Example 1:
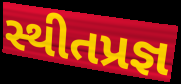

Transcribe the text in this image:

સ્થીતપ્રજ્ઞ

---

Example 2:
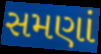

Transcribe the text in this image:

સમણાં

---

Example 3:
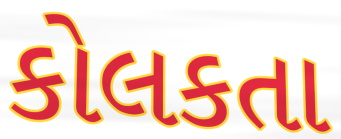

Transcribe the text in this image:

કોલકતા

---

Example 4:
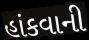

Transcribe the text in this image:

હાંકવાની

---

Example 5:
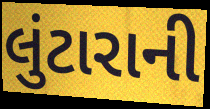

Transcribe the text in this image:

લુંટારાની